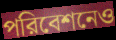
পরিবেশনেও